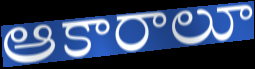
ఆకారాలూ